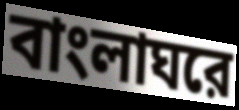
বাংলাঘরে